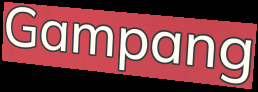
Gampang